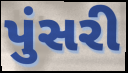
પુંસરી